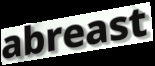
abreast